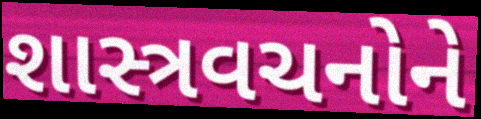
શાસ્ત્રવચનોને